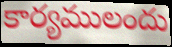
కార్యములందు